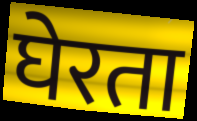
घेरता